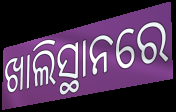
ଖାଲିସ୍ଥାନରେ